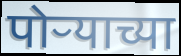
पोऱ्याच्या